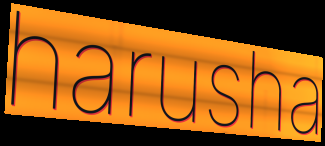
harusha